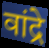
वांद्रे